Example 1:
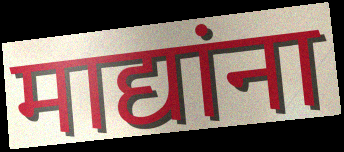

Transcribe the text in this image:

माद्यांना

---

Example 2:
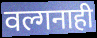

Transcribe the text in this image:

वल्गनाही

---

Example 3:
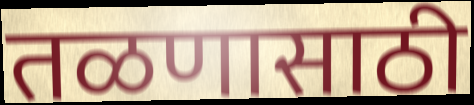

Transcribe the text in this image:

तळणासाठी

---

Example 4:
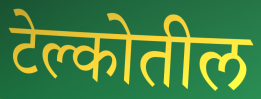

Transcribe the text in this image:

टेल्कोतील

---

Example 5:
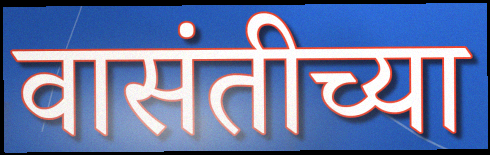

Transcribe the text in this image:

वासंतीच्या